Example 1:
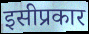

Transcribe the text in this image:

इसीप्रकार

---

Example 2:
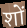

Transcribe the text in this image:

शों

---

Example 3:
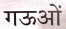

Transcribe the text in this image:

गऊओं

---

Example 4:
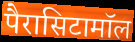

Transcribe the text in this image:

पैरासिटामॉल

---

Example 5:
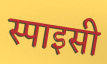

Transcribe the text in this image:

स्पाइसी